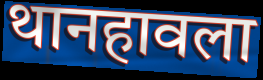
थानहावला